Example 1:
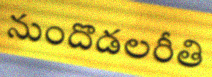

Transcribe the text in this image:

నుందొడలరీతి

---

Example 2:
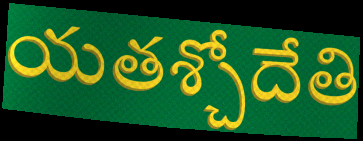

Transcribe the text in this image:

యతశ్చోదేతి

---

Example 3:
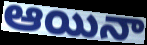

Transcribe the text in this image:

ఆయినా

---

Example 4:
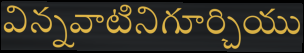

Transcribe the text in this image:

విన్నవాటినిగూర్చియు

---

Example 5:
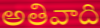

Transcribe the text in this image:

అతివాది